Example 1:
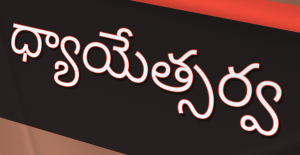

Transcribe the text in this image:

ధ్యాయేత్సర్వ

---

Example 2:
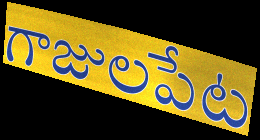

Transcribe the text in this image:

గాజులపేట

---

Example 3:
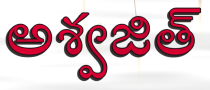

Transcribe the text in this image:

అశ్వజిత్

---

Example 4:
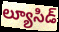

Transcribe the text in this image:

ల్యూసిడ్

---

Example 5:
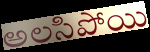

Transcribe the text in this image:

అలసిపోయి